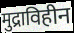
मुद्राविहीन